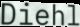
Diehl